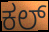
ಕಲ್